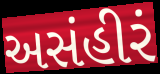
અસંહીરં